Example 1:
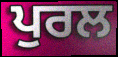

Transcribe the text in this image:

ਪੁਰਲ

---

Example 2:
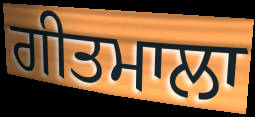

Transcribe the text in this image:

ਗੀਤਮਾਲਾ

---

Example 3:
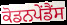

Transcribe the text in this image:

ਕੋਡਨਪੇਂਡੈਂਸ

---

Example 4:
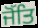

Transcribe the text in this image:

ਜੋੱਤਿ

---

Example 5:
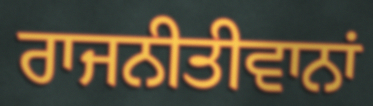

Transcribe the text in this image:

ਰਾਜਨੀਤੀਵਾਨਾਂ